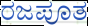
ರಜಪೂತ